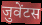
जुवेंटस